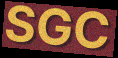
SGC